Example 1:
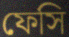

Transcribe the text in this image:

ফেসি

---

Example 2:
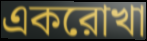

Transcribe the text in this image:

একরোখা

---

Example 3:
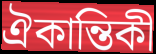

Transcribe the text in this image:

ঐকান্তিকী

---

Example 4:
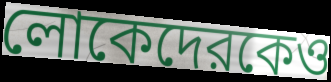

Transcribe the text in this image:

লোকেদেরকেও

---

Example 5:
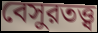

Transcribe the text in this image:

বেসুরতত্ত্ব